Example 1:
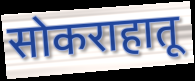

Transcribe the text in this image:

सोकराहातू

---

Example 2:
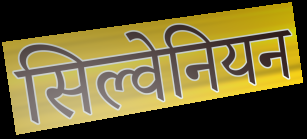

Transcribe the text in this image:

सिल्वेनियन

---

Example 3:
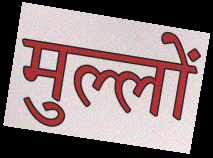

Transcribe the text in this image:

मुल्लों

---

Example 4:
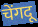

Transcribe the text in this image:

चेंगदू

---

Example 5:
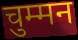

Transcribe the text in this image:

चुम्मन